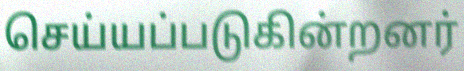
செய்யப்படுகின்றனர்